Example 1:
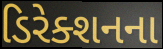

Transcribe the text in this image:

ડિરેક્શનના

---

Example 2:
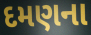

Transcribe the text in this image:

દમણના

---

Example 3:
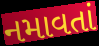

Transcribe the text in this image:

નમાવતાં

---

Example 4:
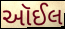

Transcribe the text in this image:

ઑઈલ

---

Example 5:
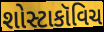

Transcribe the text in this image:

શોસ્ટાકૉવિચ